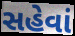
સહેવાં